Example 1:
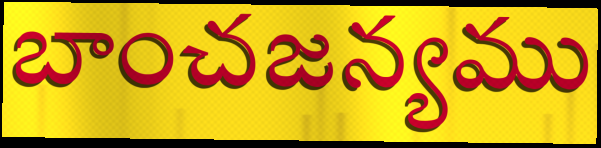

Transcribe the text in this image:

బాంచజన్యము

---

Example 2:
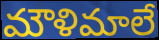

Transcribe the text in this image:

మౌళిమాలే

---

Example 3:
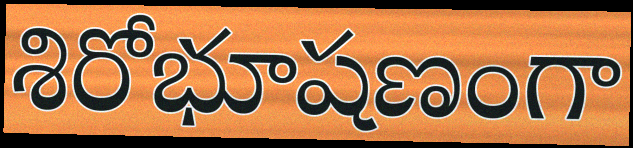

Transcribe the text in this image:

శిరోభూషణంగా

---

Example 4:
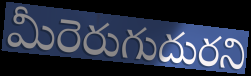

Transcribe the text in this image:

మీరెరుగుదురని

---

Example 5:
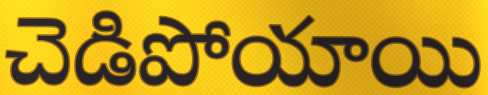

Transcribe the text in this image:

చెడిపోయాయి